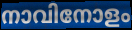
നാവിനോളം